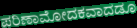
ಪರಿಣಾಮೋದಕವಾದಡೂ